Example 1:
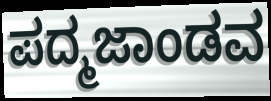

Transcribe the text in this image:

ಪದ್ಮಜಾಂಡವ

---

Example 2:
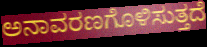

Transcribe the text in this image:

ಅನಾವರಣಗೊಳಿಸುತ್ತದೆ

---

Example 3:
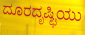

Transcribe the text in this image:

ದೂರದೃಷ್ಟಿಯು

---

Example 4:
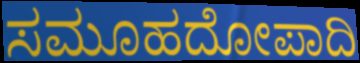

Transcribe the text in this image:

ಸಮೂಹದೋಪಾದಿ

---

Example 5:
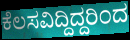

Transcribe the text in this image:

ಕೆಲಸವಿದ್ದಿದ್ದರಿಂದ